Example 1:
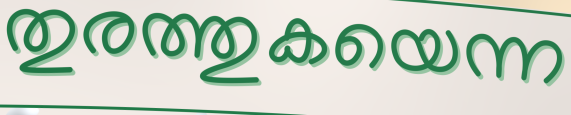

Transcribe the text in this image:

തുരത്തുകയെന്ന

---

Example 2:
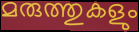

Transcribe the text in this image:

മരുത്തുകളും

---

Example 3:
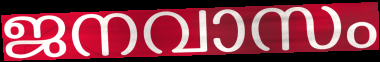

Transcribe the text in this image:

ജനവാസം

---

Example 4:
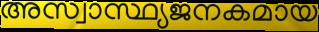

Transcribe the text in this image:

അസ്വാസ്ഥ്യജനകമായ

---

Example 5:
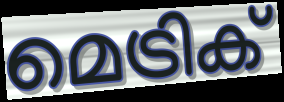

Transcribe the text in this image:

മെട്രിക്